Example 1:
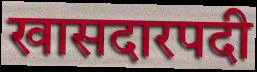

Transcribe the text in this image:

खासदारपदी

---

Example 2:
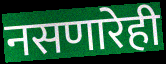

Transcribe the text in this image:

नसणारेही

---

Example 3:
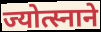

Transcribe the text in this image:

ज्योत्स्नाने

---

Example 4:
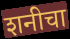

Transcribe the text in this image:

शनीचा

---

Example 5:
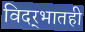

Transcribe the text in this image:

विदर्भातही